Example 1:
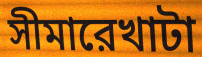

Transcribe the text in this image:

সীমারেখাটা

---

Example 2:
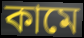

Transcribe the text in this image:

কামে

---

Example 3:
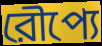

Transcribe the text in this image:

রৌপ্যে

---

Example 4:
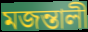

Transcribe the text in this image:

মজন্তালী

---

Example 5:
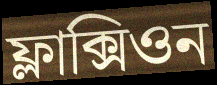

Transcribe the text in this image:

ফ্লাক্সিওন